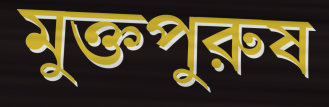
মুক্তপুরুষ